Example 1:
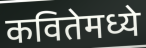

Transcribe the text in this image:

कवितेमध्ये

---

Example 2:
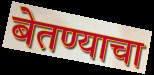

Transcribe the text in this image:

बेतण्याचा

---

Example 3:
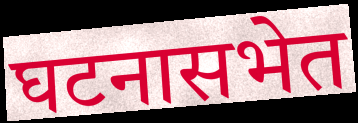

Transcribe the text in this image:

घटनासभेत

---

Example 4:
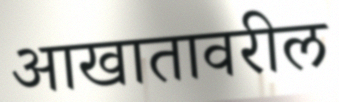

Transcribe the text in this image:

आखातावरील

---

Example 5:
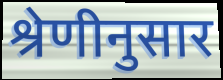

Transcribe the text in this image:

श्रेणीनुसार